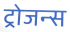
ट्रोजन्स